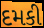
દમકી